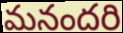
మనందరి